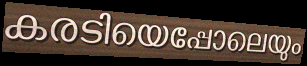
കരടിയെപ്പോലെയും